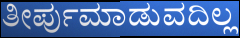
ತೀರ್ಪುಮಾಡುವದಿಲ್ಲ